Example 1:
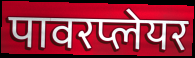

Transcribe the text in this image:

पावरप्लेयर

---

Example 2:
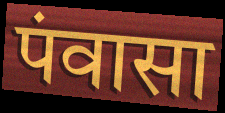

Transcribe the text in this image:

पंवासा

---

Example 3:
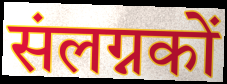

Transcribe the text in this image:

संलग्नकों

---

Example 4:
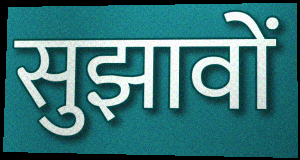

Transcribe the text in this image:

सुझावों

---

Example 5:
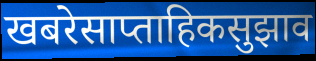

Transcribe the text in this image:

खबरेसाप्ताहिकसुझाव